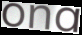
ona